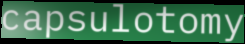
capsulotomy